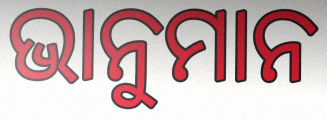
ଭାନୁମାନ